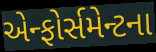
એન્ફોર્સમેન્ટના